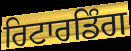
ਰਿਟਾਰਡਿੰਗ